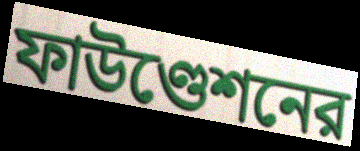
ফাউণ্ডেশনের